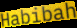
Habibah